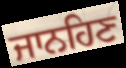
ਜਾਨਹਿਣ